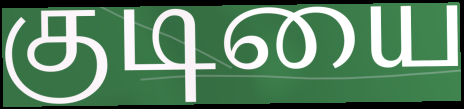
குடியை